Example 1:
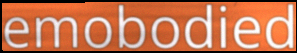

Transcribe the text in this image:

emobodied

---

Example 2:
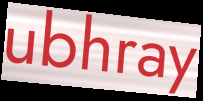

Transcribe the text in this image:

ubhray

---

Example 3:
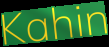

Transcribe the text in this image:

Kahin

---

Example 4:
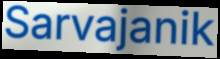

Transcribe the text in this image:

Sarvajanik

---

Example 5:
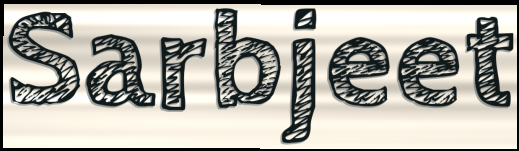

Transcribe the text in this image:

Sarbjeet